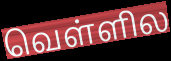
வெள்ளில